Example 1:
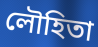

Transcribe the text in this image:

লৌহিতা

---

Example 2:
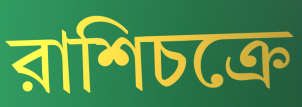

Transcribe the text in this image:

রাশিচক্রে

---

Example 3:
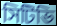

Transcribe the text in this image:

সিটিভি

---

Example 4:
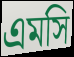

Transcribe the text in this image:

এমসি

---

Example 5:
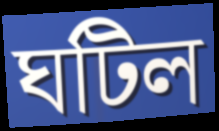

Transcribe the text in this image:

ঘটিল